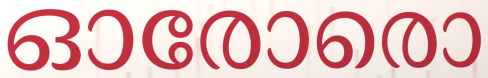
ഓരോരൊ